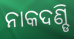
ନାକଦଣ୍ଡି